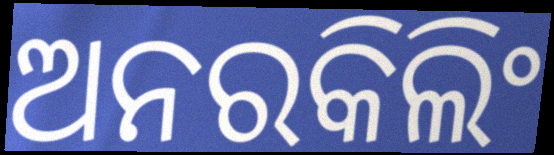
ଅନରକିଲିଂ